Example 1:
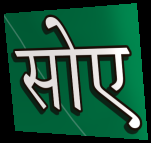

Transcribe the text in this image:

सोए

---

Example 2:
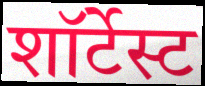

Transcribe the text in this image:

शॉर्टेस्ट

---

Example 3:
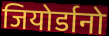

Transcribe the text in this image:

जियोर्डानो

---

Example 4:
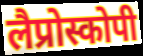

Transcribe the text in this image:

लैप्रोस्कोपी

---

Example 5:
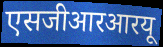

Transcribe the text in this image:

एसजीआरआरयू